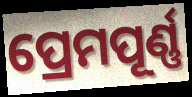
ପ୍ରେମପୂର୍ଣ୍ଣ